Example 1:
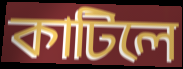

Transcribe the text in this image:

কাটিলে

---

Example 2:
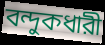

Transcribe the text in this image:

বন্দুকধারী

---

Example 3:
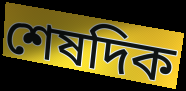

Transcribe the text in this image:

শেষদিক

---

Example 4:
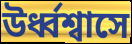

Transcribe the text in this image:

উর্ধ্বশ্বাসে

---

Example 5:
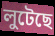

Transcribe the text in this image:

লুটেছে